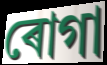
ৰোগা